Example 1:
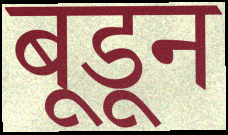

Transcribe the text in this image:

बूडून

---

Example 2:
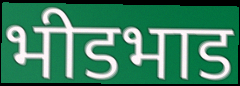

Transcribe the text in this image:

भीडभाड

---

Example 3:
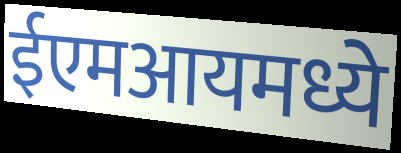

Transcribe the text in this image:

ईएमआयमध्ये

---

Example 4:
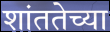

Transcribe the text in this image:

शांततेच्या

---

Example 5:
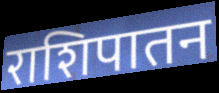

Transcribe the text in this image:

राशिपातन